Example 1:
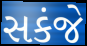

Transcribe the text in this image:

સકંજે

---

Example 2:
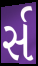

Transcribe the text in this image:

ર્સ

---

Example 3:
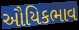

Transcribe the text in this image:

ઔયિકભાવ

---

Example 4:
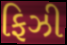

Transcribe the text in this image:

ફિઝી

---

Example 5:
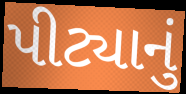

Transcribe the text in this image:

પીટ્યાનું